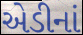
એડીનાં